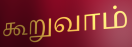
கூறுவாம்